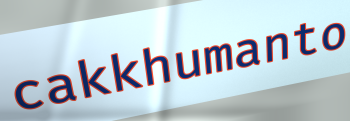
cakkhumanto